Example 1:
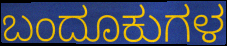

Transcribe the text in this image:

ಬಂದೂಕುಗಳ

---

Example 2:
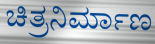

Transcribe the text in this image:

ಚಿತ್ರನಿರ್ಮಾಣ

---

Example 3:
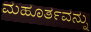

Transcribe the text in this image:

ಮಹೂರ್ತವನ್ನು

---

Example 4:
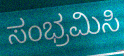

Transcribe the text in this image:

ಸಂಭ್ರಮಿಸಿ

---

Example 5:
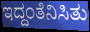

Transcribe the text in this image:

ಇದ್ದಂತೆನಿಸಿತು